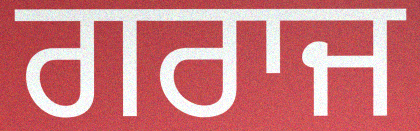
ਗਰਾਜ